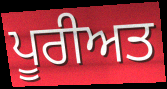
ਪੂਰੀਅਤ